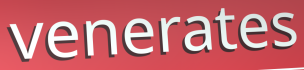
venerates